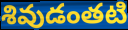
శివుడంతటి